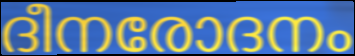
ദീനരോദനം